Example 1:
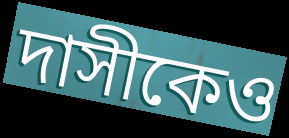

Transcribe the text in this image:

দাসীকেও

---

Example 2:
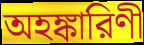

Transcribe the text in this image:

অহঙ্কারিণী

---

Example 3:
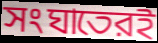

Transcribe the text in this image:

সংঘাতেরই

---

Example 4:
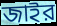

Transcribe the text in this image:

জাইর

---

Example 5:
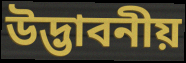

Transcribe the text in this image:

উদ্ভাবনীয়